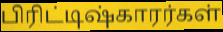
பிரிட்டிஷ்காரர்கள்